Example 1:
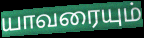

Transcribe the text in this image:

யாவரையும்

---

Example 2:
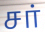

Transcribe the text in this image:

சர்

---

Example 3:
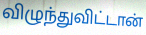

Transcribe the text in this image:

விழுந்துவிட்டான்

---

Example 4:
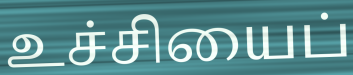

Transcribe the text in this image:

உச்சியைப்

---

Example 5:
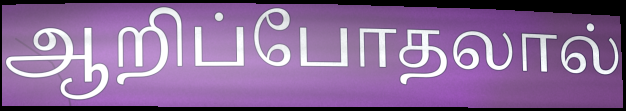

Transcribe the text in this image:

ஆறிப்போதலால்